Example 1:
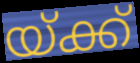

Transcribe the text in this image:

യ്ക്ക്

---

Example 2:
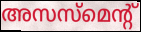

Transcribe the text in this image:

അസസ്മെന്റ്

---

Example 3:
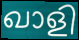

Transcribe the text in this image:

ഖാളി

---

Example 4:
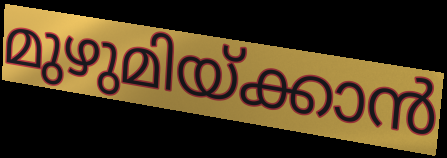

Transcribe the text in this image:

മുഴുമിയ്ക്കാൻ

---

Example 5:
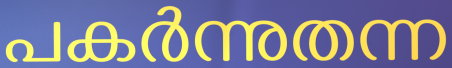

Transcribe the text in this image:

പകർന്നുതന്ന